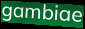
gambiae